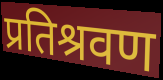
प्रतिश्रवण